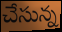
చేసున్న